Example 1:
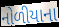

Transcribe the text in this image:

નોળીયાના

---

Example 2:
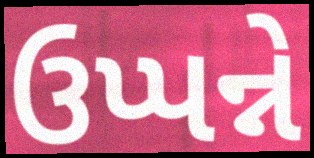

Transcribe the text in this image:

ઉપ્પન્ને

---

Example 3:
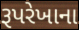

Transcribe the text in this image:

રૂપરેખાના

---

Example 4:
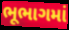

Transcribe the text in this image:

ભૂભાગમાં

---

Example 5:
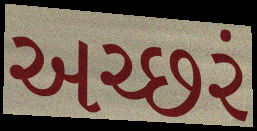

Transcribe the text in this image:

અચ્છરં